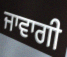
ਜਾਵਾਗੀ